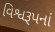
વિશ્વરૂપનાં